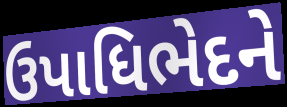
ઉપાધિભેદને